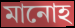
মানোহ